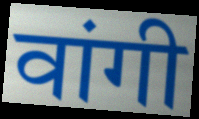
वांगी